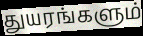
துயரங்களும்